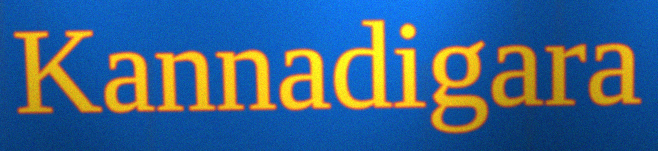
Kannadigara